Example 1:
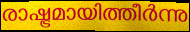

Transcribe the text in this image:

രാഷ്ട്രമായിത്തീർന്നു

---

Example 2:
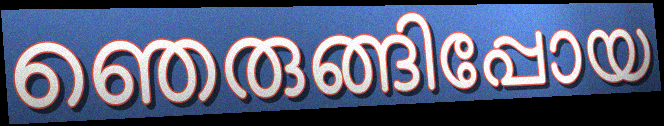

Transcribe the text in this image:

ഞെരുങ്ങിപ്പോയ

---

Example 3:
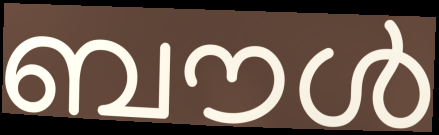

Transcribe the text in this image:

ബൗൾ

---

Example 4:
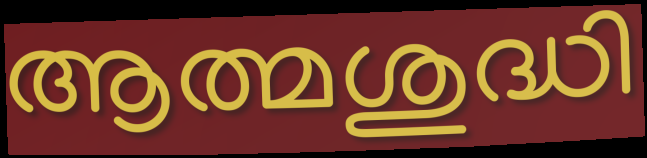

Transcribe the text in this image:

ആത്മശുദ്ധി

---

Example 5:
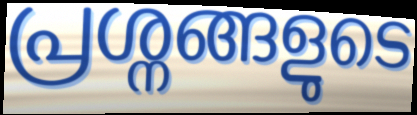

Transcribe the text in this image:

പ്രശ്നങ്ങളുടെ